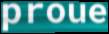
proue